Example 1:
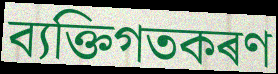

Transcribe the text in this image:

ব্যক্তিগতকৰণ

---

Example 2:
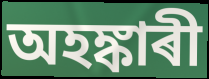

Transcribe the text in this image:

অহঙ্কাৰী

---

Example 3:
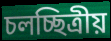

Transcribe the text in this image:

চলচ্ছিত্ৰীয়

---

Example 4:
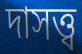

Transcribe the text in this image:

দাসত্ত্ব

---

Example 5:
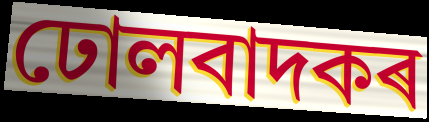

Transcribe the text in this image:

ঢোলবাদকৰ